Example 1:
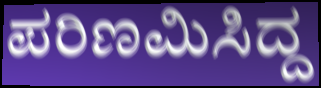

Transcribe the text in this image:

ಪರಿಣಮಿಸಿದ್ದ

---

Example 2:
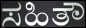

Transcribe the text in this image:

ಸಹಿತೌ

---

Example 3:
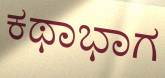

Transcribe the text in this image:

ಕಥಾಭಾಗ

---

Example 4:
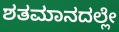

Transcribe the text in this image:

ಶತಮಾನದಲ್ಲೇ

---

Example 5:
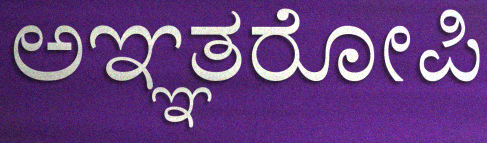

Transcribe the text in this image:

ಅಞ್ಞತರೋಪಿ